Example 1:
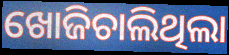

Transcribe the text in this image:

ଖୋଜିଚାଲିଥିଲା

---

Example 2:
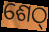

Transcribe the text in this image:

ଶେଠ୍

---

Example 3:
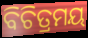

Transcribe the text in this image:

ବିଚିତ୍ରମୟ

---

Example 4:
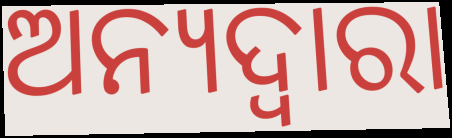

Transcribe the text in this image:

ଅନ୍ୟଦ୍ଵାରା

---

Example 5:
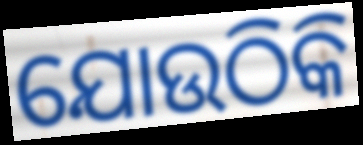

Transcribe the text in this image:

ଯୋଉଠିକି